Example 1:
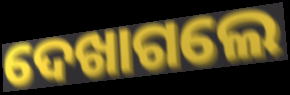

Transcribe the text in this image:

ଦେଖାଗଲେ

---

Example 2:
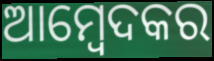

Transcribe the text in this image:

ଆମ୍ବେଦକର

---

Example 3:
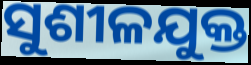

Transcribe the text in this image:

ସୁଶୀଳଯୁକ୍ତ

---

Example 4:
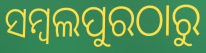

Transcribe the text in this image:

ସମ୍ବଲପୁରଠାରୁ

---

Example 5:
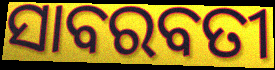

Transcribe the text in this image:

ସାବରବତୀ